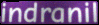
indranil